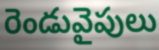
రెండువైపులు